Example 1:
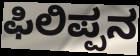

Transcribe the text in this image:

ಫಿಲಿಪ್ಪನ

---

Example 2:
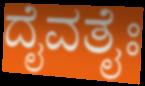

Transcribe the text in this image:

ದೈವತೈಃ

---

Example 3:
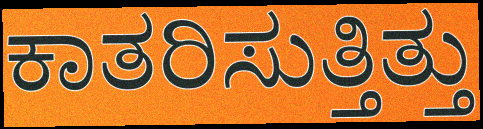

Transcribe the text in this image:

ಕಾತರಿಸುತ್ತಿತ್ತು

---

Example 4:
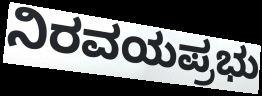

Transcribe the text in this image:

ನಿರವಯಪ್ರಭು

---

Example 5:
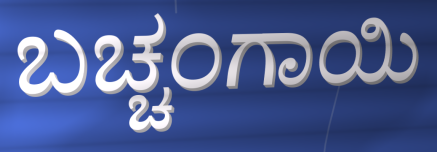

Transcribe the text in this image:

ಬಚ್ಚಂಗಾಯಿ